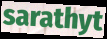
sarathyt